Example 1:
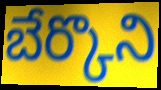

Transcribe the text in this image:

బేర్కొని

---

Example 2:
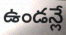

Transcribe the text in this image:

ఉండన్లే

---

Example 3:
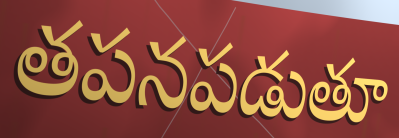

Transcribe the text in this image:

తపనపడుతూ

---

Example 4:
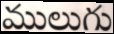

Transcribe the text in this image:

ములుగు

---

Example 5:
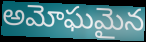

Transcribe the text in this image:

అమోఘమైన